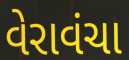
વેરાવંચા